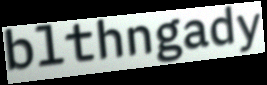
blthngady